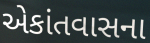
એકાંતવાસના